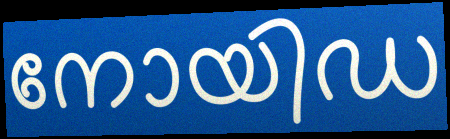
നോയിഡ